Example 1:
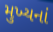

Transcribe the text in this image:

મુખ્યનાં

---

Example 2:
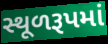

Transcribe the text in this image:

સ્થૂળરૂપમાં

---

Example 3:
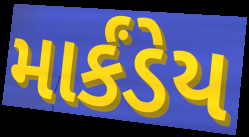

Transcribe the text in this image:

માર્કંડેય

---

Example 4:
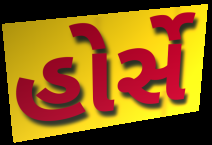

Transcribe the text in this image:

હોર્સે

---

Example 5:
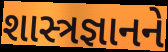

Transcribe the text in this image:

શાસ્ત્રજ્ઞાનને